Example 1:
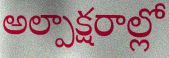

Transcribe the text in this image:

అల్పాక్షరాల్లో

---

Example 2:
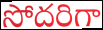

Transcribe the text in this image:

సోదరిగా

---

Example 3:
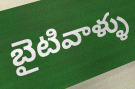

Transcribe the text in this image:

బైటివాళ్ళు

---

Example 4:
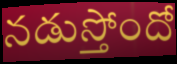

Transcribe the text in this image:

నడుస్తోందో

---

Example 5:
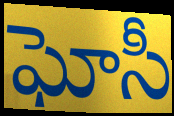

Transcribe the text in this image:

ఘోసీ